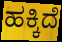
ಹಕ್ಕಿದೆ